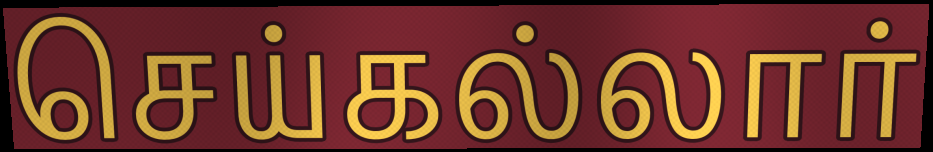
செய்கல்லார்